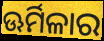
ଊର୍ମିଳାର